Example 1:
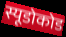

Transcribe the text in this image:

स्यूडोकोड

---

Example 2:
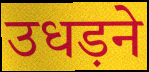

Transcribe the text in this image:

उधड़ने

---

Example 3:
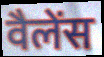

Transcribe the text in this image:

वैलेंस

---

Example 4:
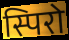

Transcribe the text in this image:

स्पिरो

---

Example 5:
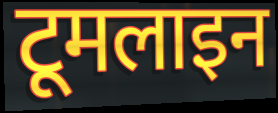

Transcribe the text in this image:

टूमलाइन